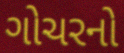
ગોચરનો